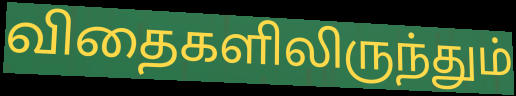
விதைகளிலிருந்தும்